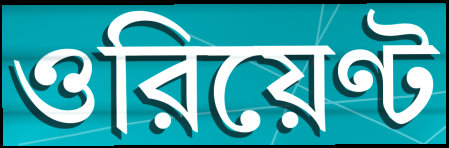
ওরিয়েণ্ট